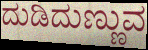
ದುಡಿದುಣ್ಣುವ